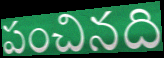
పంచినది